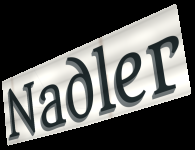
Nadler